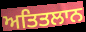
ਅਤਿਤਲਾਨ